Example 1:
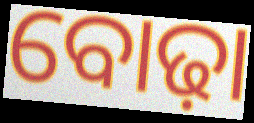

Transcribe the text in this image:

ବୋଢ଼ା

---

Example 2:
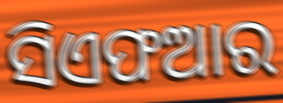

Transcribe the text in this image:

ସିଏଫଆର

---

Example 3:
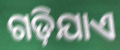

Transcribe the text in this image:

ଗଡ଼ିଯାଏ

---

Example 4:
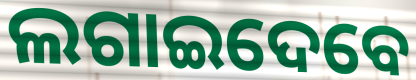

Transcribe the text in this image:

ଲଗାଇଦେବେ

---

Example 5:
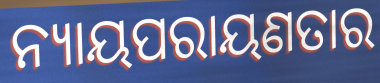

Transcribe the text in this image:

ନ୍ୟାୟପରାୟଣତାର